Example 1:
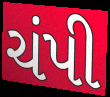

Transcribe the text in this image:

ચંપી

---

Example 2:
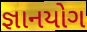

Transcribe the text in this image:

જ્ઞાનયોગ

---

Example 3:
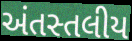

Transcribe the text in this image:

અંતસ્તલીય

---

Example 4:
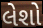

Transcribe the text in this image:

લેશો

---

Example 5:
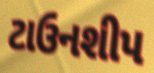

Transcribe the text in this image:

ટાઉનશીપ